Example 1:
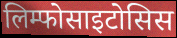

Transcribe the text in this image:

लिम्फोसाइटोसिस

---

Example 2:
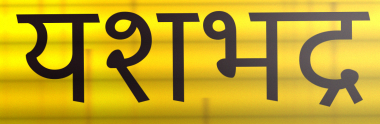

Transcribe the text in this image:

यशभद्र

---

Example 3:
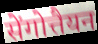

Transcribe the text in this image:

सेंगोत्तैयन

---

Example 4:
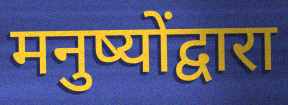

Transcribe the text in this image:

मनुष्योंद्वारा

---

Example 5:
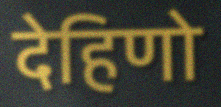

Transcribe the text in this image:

देहिणो